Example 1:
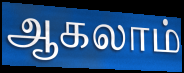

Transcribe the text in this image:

ஆகலாம்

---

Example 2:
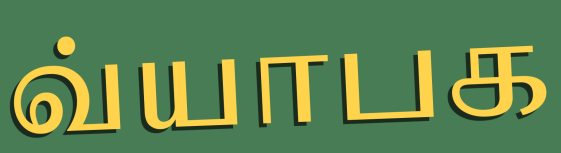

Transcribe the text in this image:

வ்யாபக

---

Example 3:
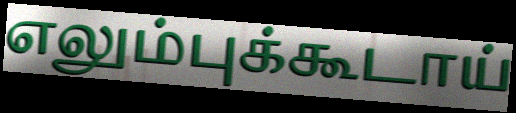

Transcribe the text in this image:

எலும்புக்கூடாய்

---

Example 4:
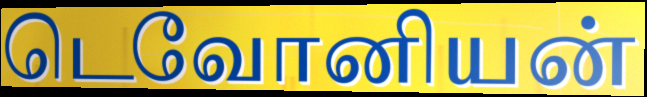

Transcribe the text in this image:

டெவோனியன்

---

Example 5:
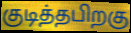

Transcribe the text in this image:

குடித்தபிறகு